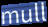
mull